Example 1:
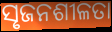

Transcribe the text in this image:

ସୃଜନଶୀଳତା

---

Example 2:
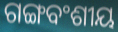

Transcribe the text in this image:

ଗଙ୍ଗବଂଶୀୟ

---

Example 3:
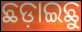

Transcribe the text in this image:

ଛଡ଼ାଇଛୁ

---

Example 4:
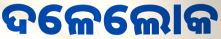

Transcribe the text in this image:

ଦଳେଲୋକ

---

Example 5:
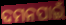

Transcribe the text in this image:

ଦମନପାଇଁ